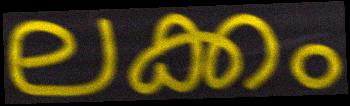
ലക്കം